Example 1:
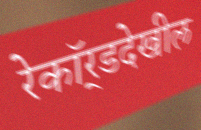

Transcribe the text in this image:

रेकॉर्डदेखील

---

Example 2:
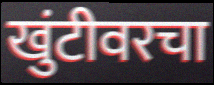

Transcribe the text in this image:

खुंटीवरचा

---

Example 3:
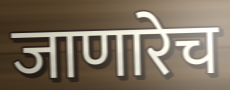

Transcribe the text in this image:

जाणारेच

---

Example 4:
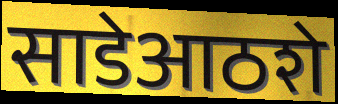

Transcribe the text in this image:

साडेआठशे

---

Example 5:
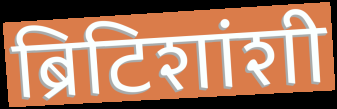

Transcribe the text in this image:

ब्रिटिशांशी